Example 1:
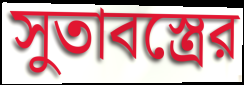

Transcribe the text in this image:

সুতাবস্ত্রের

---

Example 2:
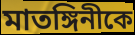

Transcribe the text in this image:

মাতঙ্গিনীকে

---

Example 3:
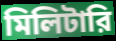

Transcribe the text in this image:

মিলিটারি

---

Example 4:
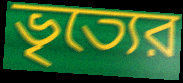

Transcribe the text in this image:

ভৃত্যের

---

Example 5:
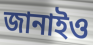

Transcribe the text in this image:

জানাইও